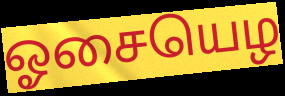
ஓசையெழ